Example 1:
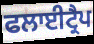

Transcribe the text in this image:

ਫਲਾਈਟ੍ਰੈਪ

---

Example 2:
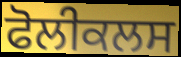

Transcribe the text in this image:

ਫੋਲੀਕਲਸ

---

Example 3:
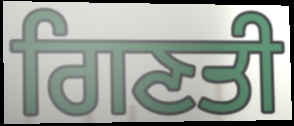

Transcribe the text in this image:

ਗਿਣਤੀ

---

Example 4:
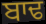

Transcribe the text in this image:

ਬਾਢ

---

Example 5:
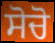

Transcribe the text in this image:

ਸੋਚੋ